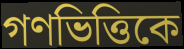
গণভিত্তিকে